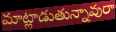
మాట్లాడుతున్నావురా